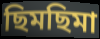
ছিমছিমা